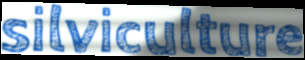
silviculture